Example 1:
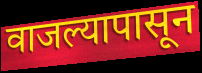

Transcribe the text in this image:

वाजल्यापासून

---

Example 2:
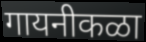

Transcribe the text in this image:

गायनीकळा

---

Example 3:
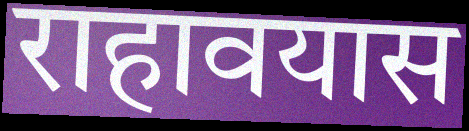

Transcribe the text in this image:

राहावयास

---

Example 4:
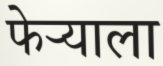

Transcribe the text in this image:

फेऱ्याला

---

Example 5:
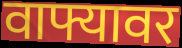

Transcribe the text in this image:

वाफ्यावर